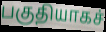
பகுதியாகச்